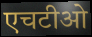
एचटीओ